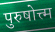
पुरुषोत्त्म